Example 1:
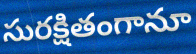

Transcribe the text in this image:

సురక్షితంగానూ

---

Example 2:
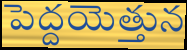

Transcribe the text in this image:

పెద్దయెత్తున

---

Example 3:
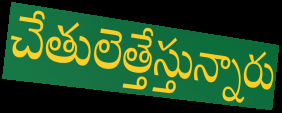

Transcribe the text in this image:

చేతులెత్తేస్తున్నారు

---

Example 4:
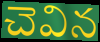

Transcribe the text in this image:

చెవిన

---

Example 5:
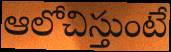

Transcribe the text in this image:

ఆలోచిస్తుంటే